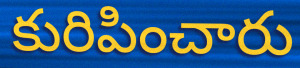
కురిపించారు